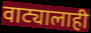
वाट्यालाही